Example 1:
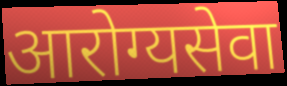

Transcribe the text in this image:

आरोग्यसेवा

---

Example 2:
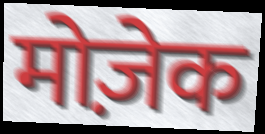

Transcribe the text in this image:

मोज़ेक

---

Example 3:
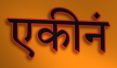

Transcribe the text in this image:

एकीनं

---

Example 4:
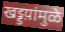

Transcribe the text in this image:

खड्डय़ांमुळे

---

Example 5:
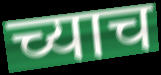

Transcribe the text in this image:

च्याच